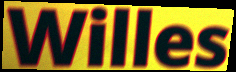
Willes